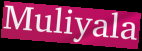
Muliyala